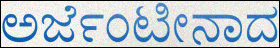
ಅರ್ಜೆಂಟೀನಾದ